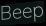
Beep